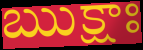
ఋక్షాః